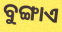
ବୁଙ୍ଗାଏ